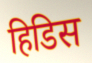
हिडिस